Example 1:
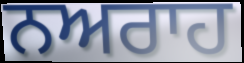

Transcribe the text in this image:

ਨਅਰਾਹ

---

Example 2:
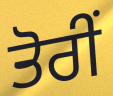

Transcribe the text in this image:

ਤੋਰੀਂ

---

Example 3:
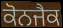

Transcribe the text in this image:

ਕੋਨਜੈਕ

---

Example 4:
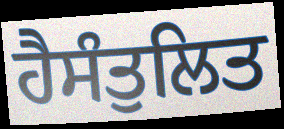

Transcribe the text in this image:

ਹੈਸੰਤੁਲਿਤ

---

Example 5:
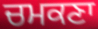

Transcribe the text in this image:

ਚਮਕਣਾ